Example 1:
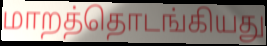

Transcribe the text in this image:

மாறத்தொடங்கியது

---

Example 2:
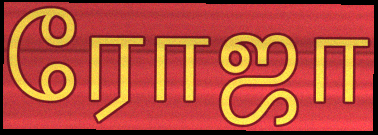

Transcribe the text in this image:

ரோஜா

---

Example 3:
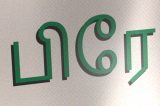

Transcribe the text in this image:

பிரே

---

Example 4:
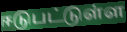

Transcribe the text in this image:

ஈடுபட்டுள்ள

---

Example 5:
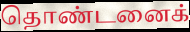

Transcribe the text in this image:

தொண்டனைக்